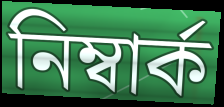
নিম্বাৰ্ক